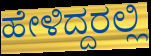
ಹೇಳಿದ್ದರಲ್ಲಿ